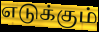
எடுக்கும்